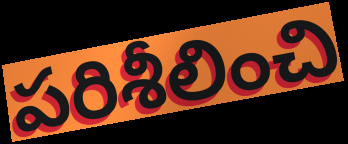
పరిశీలించి